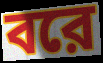
বরে